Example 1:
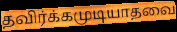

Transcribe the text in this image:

தவிர்க்கமுடியாதவை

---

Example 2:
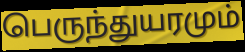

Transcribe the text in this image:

பெருந்துயரமும்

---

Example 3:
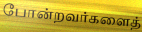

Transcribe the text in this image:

போன்றவர்களைத்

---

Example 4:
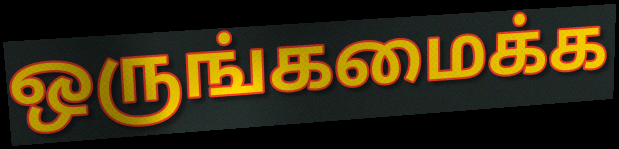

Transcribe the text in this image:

ஒருங்கமைக்க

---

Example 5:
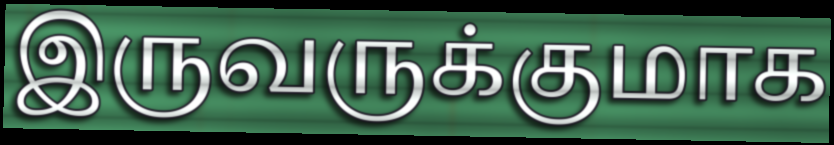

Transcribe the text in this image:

இருவருக்குமாக